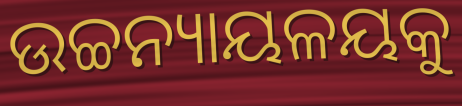
ଉଚ୍ଚନ୍ୟାୟଳୟକୁ